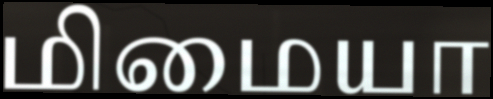
மிமையா